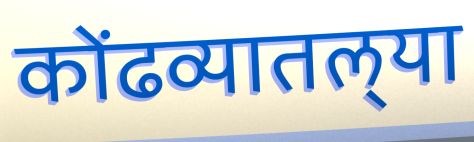
कोंढव्यातल्या